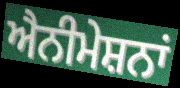
ਐਨੀਮੇਸ਼ਨਾਂ